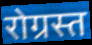
रोग्रस्त